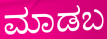
ಮಾಡಬ